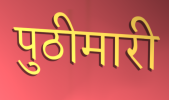
पुठीमारी